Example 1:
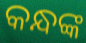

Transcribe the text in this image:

କନ୍ଧଙ୍କ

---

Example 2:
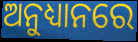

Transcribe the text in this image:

ଅନୁଧ୍ୟାନରେ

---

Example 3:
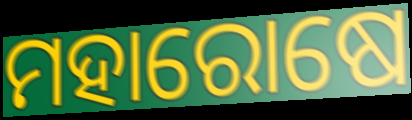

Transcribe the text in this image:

ମହାରୋଷେ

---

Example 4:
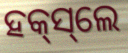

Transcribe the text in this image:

ହକ୍‌ସ୍‌ଲେ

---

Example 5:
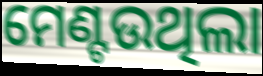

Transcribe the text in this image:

ମେଣ୍ଟଉଥିଲା